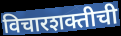
विचारशक्तीची